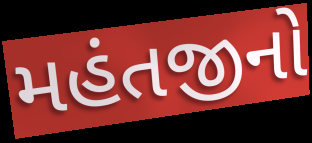
મહંતજીનો